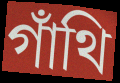
গাঁথি